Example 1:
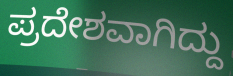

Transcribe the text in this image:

ಪ್ರದೇಶವಾಗಿದ್ದು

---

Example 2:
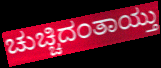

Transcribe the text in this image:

ಚುಚ್ಚಿದಂತಾಯ್ತು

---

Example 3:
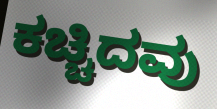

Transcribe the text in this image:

ಕಚ್ಚಿದವು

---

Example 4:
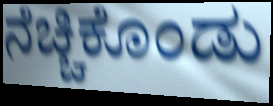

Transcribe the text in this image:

ನೆಚ್ಚಿಕೊಂಡು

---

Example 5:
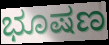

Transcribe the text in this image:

ಭೂಷಣ